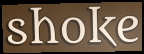
shoke